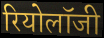
रियोलॉजी